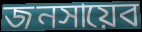
জনসায়েব